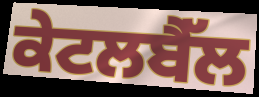
ਕੇਟਲਬੈੱਲ